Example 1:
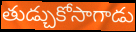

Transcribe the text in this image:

తుడ్చుకోసాగాడు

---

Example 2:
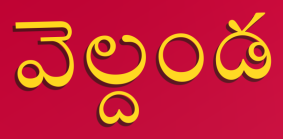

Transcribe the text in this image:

వెల్దండ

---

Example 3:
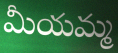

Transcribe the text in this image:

మీయమ్మ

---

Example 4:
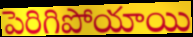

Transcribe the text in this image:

పెరిగిపోయాయి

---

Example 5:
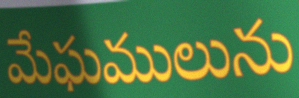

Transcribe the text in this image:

మేఘములును